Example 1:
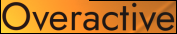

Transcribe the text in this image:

Overactive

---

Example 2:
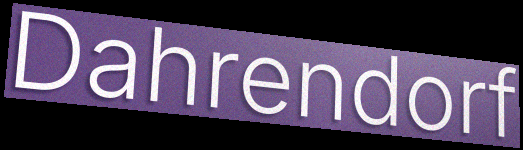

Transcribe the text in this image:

Dahrendorf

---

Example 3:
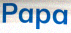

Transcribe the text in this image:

Papa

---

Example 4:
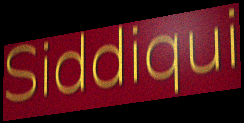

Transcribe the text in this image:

Siddiqui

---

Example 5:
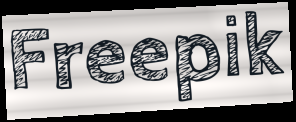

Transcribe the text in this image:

Freepik